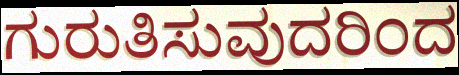
ಗುರುತಿಸುವುದರಿಂದ